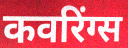
कवरिंग्स